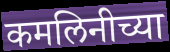
कमलिनीच्या